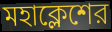
মহাক্লেশের